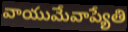
వాయుమేవాప్యేతి